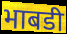
भाबडी